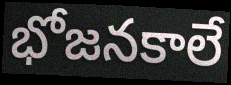
భోజనకాలే